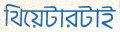
থিয়েটারটাই